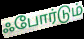
ஃபோர்டும்